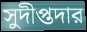
সুদীপ্তদার